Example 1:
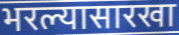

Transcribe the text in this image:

भरल्यासारखा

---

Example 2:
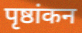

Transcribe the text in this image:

पृष्ठांकन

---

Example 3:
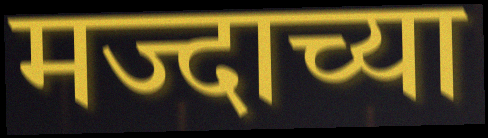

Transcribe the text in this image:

मज्दाच्या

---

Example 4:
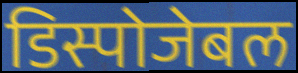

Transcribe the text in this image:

डिस्पोजेबल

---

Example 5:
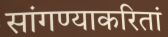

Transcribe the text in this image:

सांगण्याकरितां